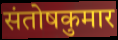
संतोषकुमार